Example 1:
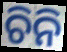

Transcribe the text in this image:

ଚିନି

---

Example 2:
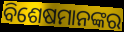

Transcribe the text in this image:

ବିଶେଷମାନଙ୍କର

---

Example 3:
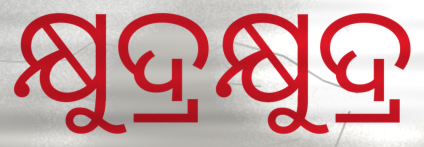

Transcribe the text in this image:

କ୍ଷୁଦ୍ରକ୍ଷୁଦ୍ର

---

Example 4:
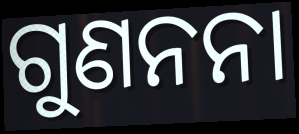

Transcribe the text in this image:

ଗୁଣନନା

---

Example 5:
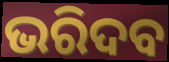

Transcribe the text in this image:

ଭରିଦବ